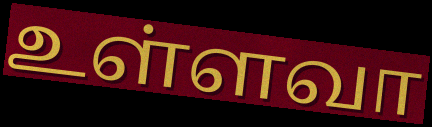
உள்ளவா